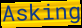
Asking